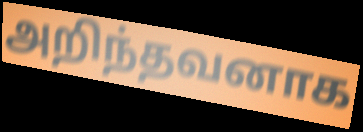
அறிந்தவனாக